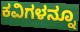
ಕವಿಗಳನ್ನೂ